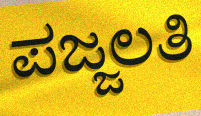
ಪಜ್ಜಲತಿ